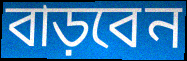
বাড়বেন